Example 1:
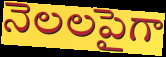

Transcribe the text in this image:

నెలలపైగా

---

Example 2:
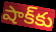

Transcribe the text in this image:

షాక్‌కు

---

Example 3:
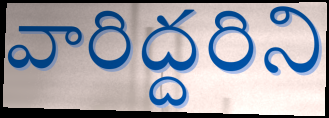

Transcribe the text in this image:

వారిద్దరిని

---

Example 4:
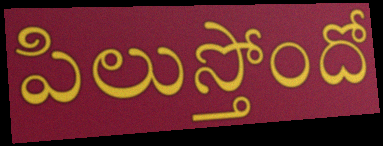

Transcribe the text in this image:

పిలుస్తోందో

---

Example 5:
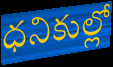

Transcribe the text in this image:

ధనికుల్లో